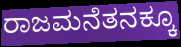
ರಾಜಮನೆತನಕ್ಕೂ